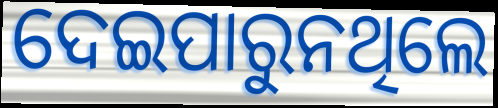
ଦେଇପାରୁନଥିଲେ